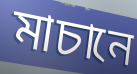
মাচানে